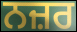
ਨਜ਼ਰ